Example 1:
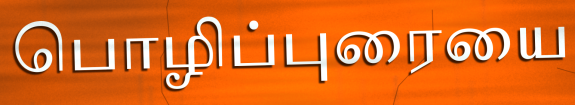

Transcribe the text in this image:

பொழிப்புரையை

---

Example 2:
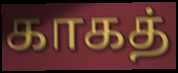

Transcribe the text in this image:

காகத்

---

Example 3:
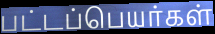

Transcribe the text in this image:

பட்டப்பெயர்கள்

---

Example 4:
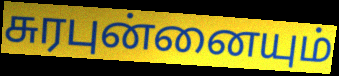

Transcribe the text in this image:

சுரபுன்னையும்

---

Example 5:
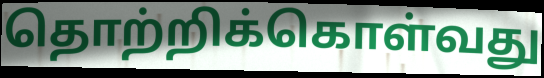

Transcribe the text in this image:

தொற்றிக்கொள்வது